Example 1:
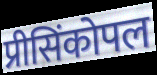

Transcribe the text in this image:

प्रीसिंकोपल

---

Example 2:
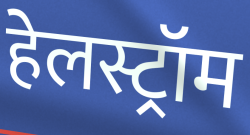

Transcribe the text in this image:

हेलस्ट्रॉम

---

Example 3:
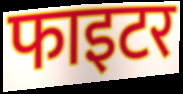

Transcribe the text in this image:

फाइटर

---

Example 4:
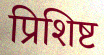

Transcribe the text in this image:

प्रिशिष्ट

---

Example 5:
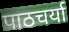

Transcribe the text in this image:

पाठचर्या